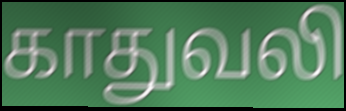
காதுவலி